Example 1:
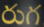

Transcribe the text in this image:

రుగ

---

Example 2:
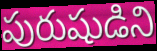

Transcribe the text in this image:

పురుషుడిని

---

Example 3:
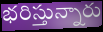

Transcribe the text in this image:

భరిస్తున్నారు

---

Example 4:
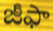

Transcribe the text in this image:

జీఫా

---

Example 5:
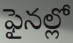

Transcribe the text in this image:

ఫైనల్లో